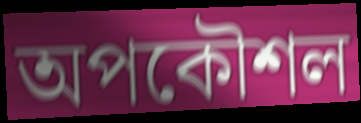
অপকৌশল